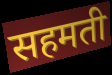
सहमती